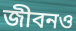
জীবনও